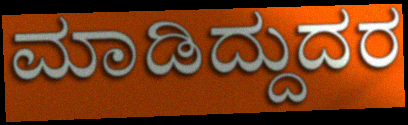
ಮಾಡಿದ್ದುದರ